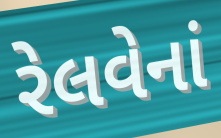
રેલવેનાં